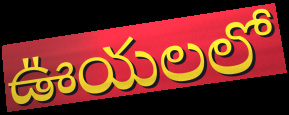
ఊయలలో